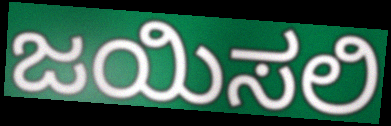
ಜಯಿಸಲಿ